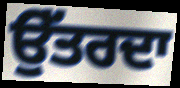
ਉੱਤਰਦਾ